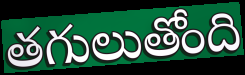
తగులుతోంది